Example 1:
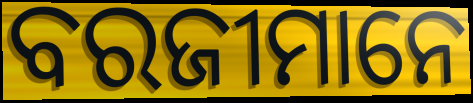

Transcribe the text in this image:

ବରଜୀମାନେ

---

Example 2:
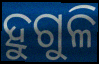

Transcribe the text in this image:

ହୁଗୁଳି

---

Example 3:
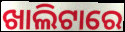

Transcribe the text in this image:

ଖାଲିଟାରେ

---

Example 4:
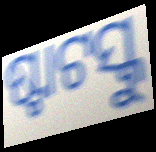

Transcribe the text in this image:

ଷ୍ଟାଟସ୍କୁ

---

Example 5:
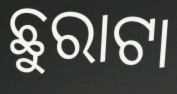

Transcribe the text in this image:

ଛୁରାଟା